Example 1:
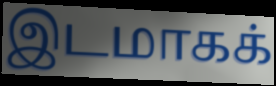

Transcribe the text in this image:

இடமாகக்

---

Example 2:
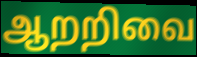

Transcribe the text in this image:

ஆறறிவை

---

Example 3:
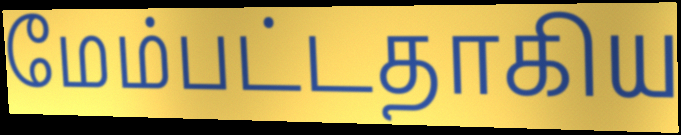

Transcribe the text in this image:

மேம்பட்டதாகிய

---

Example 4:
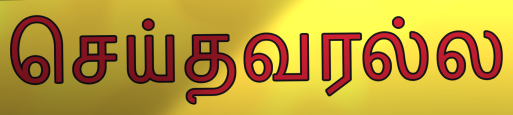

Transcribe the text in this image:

செய்தவரல்ல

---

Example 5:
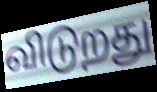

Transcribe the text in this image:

விடுறது